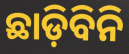
ଛାଡ଼ିବିନି